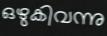
ഒഴുകിവന്നു